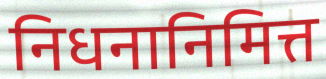
निधनानिमित्त